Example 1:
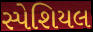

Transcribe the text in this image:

સ્પેશિયલ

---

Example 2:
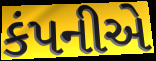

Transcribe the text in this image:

કંપનીએ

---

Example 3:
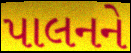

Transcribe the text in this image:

પાલનને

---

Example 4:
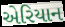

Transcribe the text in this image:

એરિયાન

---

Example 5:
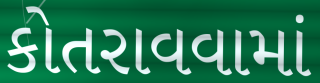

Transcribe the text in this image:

કોતરાવવામાં